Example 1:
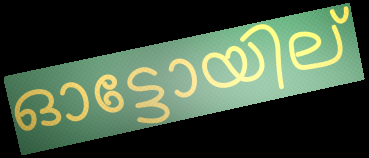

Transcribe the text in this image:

ഓട്ടോയില്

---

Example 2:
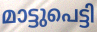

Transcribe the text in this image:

മാട്ടുപെട്ടി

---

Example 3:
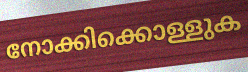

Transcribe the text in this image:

നോക്കിക്കൊള്ളുക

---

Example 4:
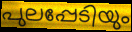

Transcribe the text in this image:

പുലപ്പേടിയും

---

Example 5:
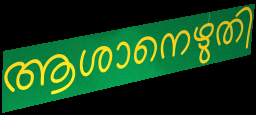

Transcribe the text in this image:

ആശാനെഴുതി